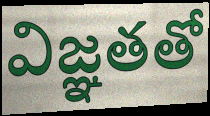
విజ్ఞతతో